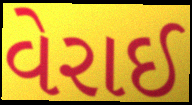
વેરાઈ